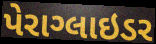
પેરાગ્લાઇડર